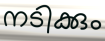
നടിക്കും